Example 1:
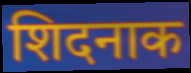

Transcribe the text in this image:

शिदनाक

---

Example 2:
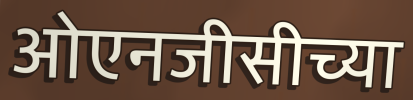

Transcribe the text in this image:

ओएनजीसीच्या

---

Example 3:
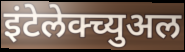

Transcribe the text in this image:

इंटेलेक्च्युअल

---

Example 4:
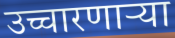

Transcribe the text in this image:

उच्चारणाऱ्या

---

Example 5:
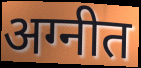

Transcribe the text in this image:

अग्नीत